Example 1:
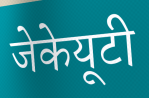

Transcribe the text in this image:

जेकेयूटी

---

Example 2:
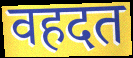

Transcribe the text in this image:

वहदत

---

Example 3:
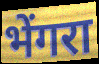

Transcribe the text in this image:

भेंगरा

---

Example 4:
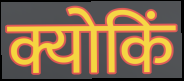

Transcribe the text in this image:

क्योकिं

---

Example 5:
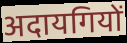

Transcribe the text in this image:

अदायगियों